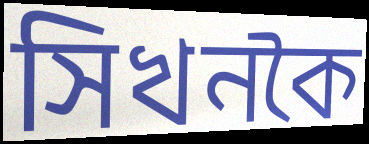
সিখনকৈ